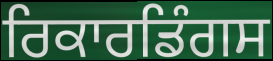
ਰਿਕਾਰਡਿੰਗਸ